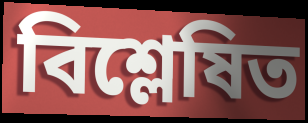
বিশ্লেষিত